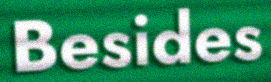
Besides